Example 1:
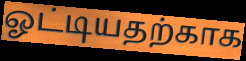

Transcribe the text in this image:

ஓட்டியதற்காக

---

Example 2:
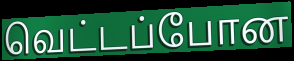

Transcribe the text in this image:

வெட்டப்போன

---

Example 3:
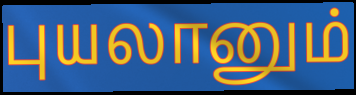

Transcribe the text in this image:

புயலானும்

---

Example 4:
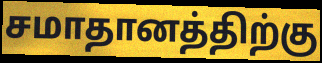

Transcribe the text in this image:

சமாதானத்திற்கு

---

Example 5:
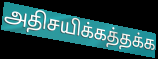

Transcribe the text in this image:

அதிசயிக்கத்தக்க